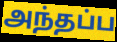
அந்தப்ப